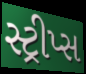
સ્ટ્રીપ્સ